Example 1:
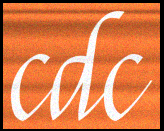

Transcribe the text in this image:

cdc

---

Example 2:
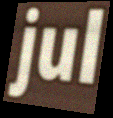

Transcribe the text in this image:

jul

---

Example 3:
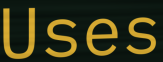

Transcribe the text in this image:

Uses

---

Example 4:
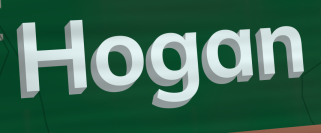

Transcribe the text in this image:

Hogan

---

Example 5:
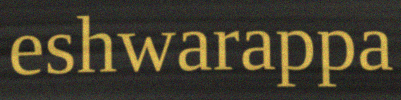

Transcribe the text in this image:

eshwarappa